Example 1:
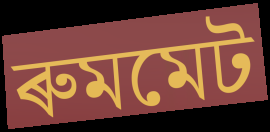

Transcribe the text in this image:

ৰুমমেট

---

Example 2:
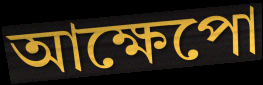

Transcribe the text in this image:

আক্ষেপো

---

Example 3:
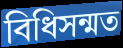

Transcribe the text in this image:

বিধিসন্মত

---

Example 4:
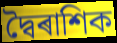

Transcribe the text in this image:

দ্বৈৰাশিক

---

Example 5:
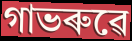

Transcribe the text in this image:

গাভৰুৱে